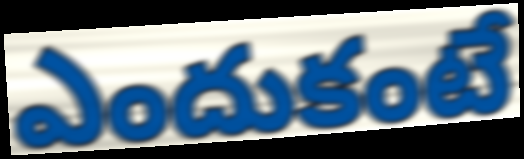
ఎందుకంటే